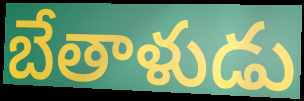
బేతాళుడు